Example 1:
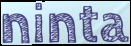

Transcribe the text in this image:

ninta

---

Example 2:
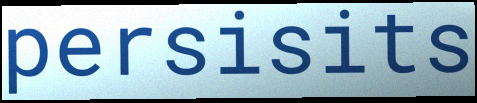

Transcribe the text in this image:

persisits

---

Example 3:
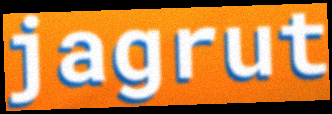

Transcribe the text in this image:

jagrut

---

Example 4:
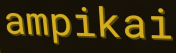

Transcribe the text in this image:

ampikai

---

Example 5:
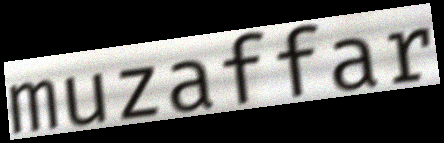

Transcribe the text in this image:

muzaffar